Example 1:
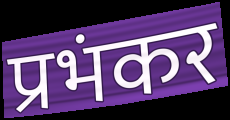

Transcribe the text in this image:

प्रभंकर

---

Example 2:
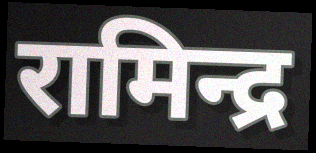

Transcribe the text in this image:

रामिन्द्र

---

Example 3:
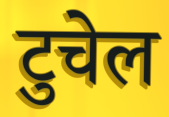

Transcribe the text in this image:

टुचेल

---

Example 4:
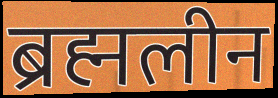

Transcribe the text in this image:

ब्रह्मलीन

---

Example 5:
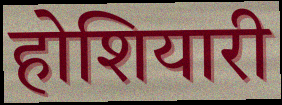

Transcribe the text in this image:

होशियारी